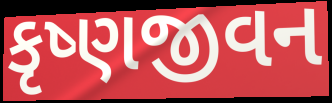
કૃષ્ણજીવન